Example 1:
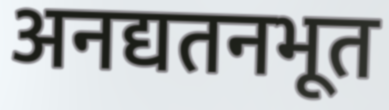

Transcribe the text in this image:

अनद्यतनभूत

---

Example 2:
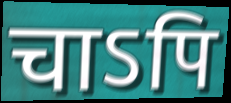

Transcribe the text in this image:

चाऽपि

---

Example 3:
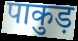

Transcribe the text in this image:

पाकुड़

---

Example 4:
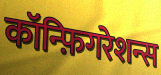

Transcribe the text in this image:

कॉन्फ़िगरेशन्स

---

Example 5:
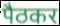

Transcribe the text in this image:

पैठकर